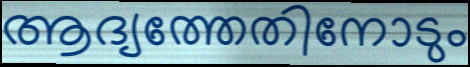
ആദ്യത്തേതിനോടും